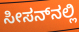
ಸೀಸನ್‌ನಲ್ಲಿ